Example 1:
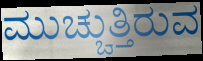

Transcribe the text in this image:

ಮುಚ್ಚುತ್ತಿರುವ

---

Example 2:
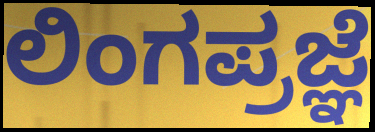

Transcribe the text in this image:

ಲಿಂಗಪ್ರಜ್ಞೆ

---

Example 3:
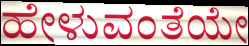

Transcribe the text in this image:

ಹೇಳುವಂತೆಯೇ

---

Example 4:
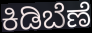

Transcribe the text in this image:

ಕಿಡಿಬೆಣೆ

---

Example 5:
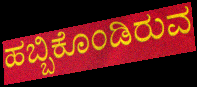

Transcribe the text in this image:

ಹಬ್ಬಿಕೊಂಡಿರುವ